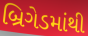
બ્રિગેડમાંથી